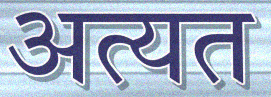
अत्यत